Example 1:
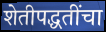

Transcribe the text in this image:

शेतीपद्धतींचा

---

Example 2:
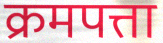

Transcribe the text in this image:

क्रमपत्ता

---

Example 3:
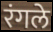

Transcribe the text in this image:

रंगले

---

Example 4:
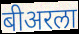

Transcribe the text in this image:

बीअरला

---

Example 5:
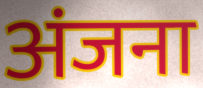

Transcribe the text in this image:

अंजना